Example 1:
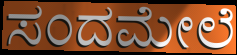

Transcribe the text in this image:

ಸಂದಮೇಲೆ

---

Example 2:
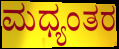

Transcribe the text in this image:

ಮಧ್ಯಂತರ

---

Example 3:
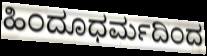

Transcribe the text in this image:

ಹಿಂದೂಧರ್ಮದಿಂದ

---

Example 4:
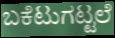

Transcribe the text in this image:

ಬಕೆಟುಗಟ್ಟಲೆ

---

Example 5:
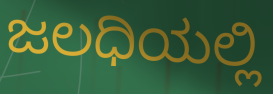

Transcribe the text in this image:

ಜಲಧಿಯಲ್ಲಿ